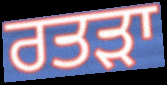
ਰਤੜਾ